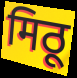
मिठू